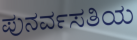
ಪುನರ್ವಸತಿಯ